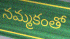
నమ్మకంతో